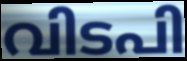
വിടപി